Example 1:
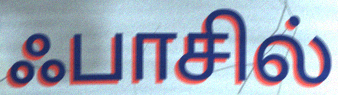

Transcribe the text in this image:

ஃபாசில்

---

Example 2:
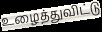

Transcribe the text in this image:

உழைத்துவிட்டு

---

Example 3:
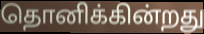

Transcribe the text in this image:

தொனிக்கின்றது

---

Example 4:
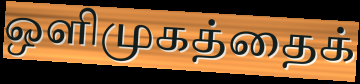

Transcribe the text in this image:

ஒளிமுகத்தைக்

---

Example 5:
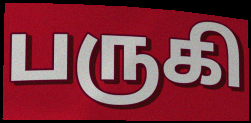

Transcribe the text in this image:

பருகி